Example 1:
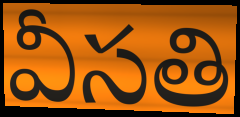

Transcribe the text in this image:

వీసతి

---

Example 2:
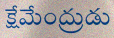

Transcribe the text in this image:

క్షేమేంద్రుడు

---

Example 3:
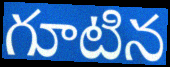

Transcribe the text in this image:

గూటిన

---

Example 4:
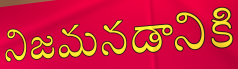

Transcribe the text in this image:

నిజమనడానికి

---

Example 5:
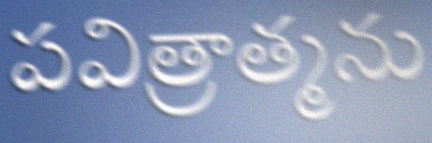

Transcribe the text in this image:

పవిత్రాత్మను